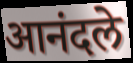
आनंदले